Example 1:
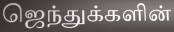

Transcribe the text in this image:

ஜெந்துக்களின்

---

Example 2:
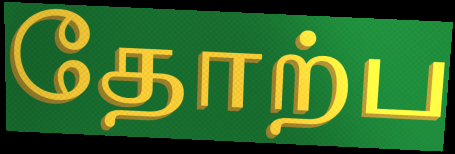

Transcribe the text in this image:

தோற்ப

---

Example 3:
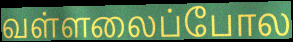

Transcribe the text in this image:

வள்ளலைப்போல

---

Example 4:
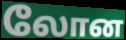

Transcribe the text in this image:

லோன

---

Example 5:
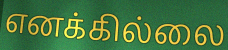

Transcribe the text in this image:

எனக்கில்லை